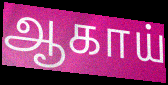
ஆகாய்